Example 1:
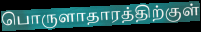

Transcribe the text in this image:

பொருளாதாரத்திற்குள்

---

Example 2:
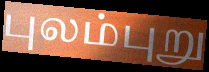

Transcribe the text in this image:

புலம்புறு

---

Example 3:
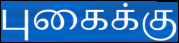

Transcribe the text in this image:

புகைக்கு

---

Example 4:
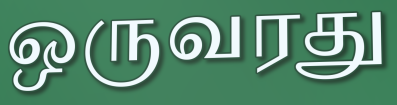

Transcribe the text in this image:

ஒருவரது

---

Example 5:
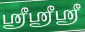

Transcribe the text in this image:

ஸ்ரீஸ்ரீஸ்ரீ